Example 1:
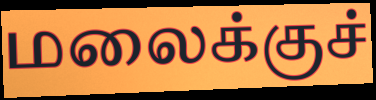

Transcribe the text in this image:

மலைக்குச்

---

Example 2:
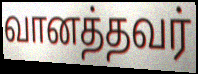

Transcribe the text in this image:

வானத்தவர்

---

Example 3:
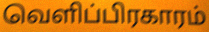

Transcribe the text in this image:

வெளிப்பிரகாரம்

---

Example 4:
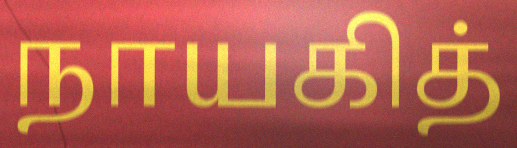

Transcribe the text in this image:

நாயகித்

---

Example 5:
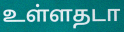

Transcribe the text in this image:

உள்ளதடா